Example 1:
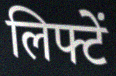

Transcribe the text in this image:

लिफ्टें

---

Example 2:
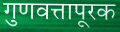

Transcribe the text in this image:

गुणवत्तापूरक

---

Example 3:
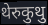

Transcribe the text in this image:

थेरुकुथु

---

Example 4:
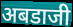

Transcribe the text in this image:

अबडाजी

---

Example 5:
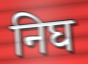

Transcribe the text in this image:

निघ